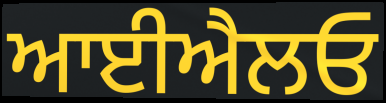
ਆਈਐਲਓ